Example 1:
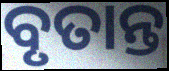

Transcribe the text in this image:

ବୃତାନ୍ତ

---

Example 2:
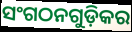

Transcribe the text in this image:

ସଂଗଠନଗୁଡ଼ିକର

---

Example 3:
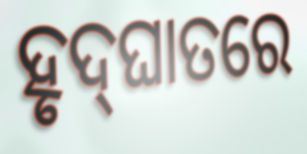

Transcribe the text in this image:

ହୃଦ୍‌ଘାତରେ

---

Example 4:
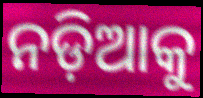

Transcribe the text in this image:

ନଡ଼ିଆକୁ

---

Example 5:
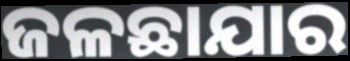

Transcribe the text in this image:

ଜଳଛାଯାର